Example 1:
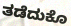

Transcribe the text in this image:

ತಡೆದುಕೊ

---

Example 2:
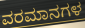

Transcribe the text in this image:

ವರಮಾನಗಳ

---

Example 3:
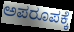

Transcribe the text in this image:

ಅಪರೂಪಕ್ಕೆ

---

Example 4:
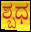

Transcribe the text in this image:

ಶ್ಬಧ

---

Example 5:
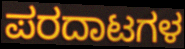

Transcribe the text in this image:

ಪರದಾಟಗಳ